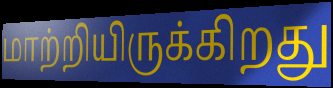
மாற்றியிருக்கிறது